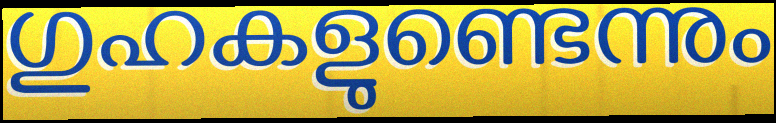
ഗുഹകളുണ്ടെന്നും